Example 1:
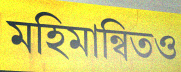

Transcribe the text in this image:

মহিমান্বিতও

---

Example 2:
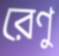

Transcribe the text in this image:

রেণু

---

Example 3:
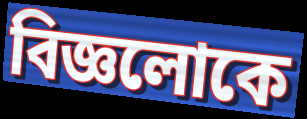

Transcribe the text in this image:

বিজ্ঞলোকে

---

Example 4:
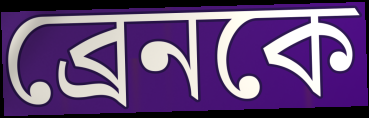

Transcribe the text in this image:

ব্রেনকে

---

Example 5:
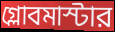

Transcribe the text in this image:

গ্লোবমাস্টার